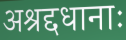
अश्रद्दधानाः